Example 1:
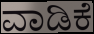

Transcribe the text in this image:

ವಾಡಿಕೆ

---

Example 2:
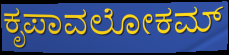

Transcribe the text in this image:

ಕೃಪಾವಲೋಕಮ್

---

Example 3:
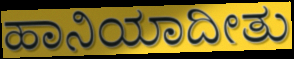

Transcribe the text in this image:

ಹಾನಿಯಾದೀತು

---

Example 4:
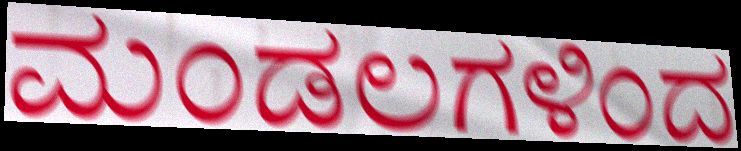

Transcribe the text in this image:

ಮಂಡಲಗಳಿಂದ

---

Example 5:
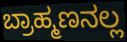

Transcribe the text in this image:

ಬ್ರಾಹ್ಮಣನಲ್ಲ